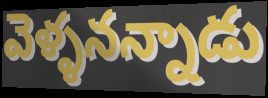
వెళ్ళనన్నాడు